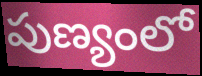
పుణ్యంలో